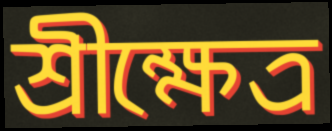
শ্রীক্ষেত্র